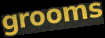
grooms